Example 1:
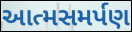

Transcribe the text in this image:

આત્મસમર્પણ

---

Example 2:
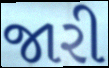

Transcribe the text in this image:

જારી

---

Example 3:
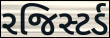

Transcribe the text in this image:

રજિસ્ટર્ડ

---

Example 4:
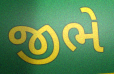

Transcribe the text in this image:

જીભે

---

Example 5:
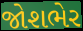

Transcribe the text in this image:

જોશભેર